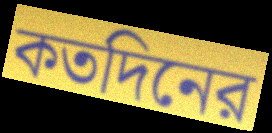
কতদিনের